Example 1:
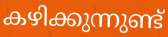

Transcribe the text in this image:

കഴിക്കുന്നുണ്ട്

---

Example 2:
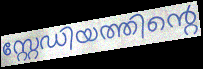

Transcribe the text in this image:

സ്റ്റേഡിയത്തിന്റെ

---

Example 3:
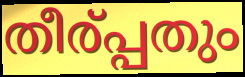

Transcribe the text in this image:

തീര്പ്പതും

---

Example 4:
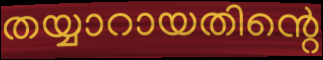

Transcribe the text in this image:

തയ്യാറായതിന്റെ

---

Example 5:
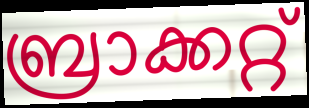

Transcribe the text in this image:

ബ്രാക്കറ്റ്